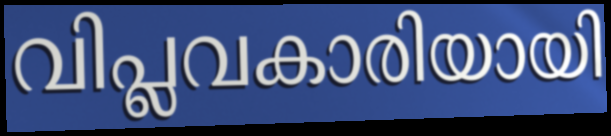
വിപ്ലവകാരിയായി